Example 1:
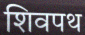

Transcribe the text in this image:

शिवपथ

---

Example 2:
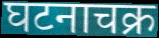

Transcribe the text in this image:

घटनाचक्र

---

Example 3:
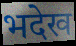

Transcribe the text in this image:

भदेख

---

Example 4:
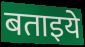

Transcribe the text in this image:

बताइये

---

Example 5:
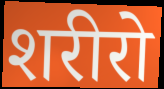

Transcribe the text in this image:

शरीरो